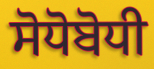
ਸੋਧੋਬੋਧੀ